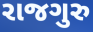
રાજગુરુ